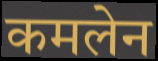
कमलेन